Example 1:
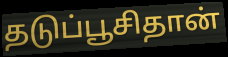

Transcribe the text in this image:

தடுப்பூசிதான்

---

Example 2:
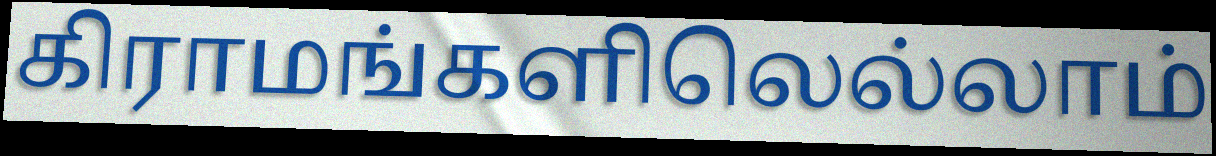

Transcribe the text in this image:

கிராமங்களிலெல்லாம்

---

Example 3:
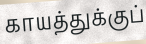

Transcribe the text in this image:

காயத்துக்குப்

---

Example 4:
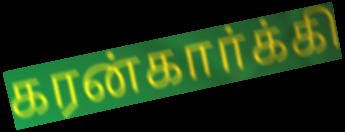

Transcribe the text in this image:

கரன்கார்க்கி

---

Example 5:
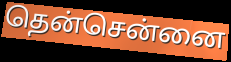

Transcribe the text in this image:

தென்சென்னை